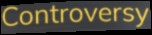
Controversy